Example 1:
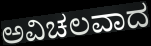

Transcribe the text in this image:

ಅವಿಚಲವಾದ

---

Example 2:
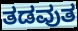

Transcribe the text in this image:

ತಡವುತ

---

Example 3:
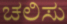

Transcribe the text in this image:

ಚಲಿಸು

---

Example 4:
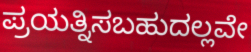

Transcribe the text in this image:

ಪ್ರಯತ್ನಿಸಬಹುದಲ್ಲವೇ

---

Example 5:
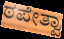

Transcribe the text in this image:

ಠಪೇತ್ವಾ